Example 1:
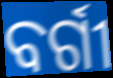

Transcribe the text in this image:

ବର୍ଗୀ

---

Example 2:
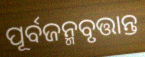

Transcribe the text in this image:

ପୂର୍ବଜନ୍ମବୃତ୍ତାନ୍ତ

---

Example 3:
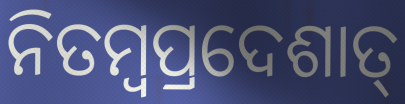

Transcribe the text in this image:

ନିତମ୍ବପ୍ରଦେଶାତ୍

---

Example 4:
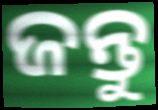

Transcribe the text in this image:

ଜନ୍ତୁ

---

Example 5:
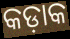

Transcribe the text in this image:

କଡ଼ାକ